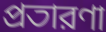
প্রতারণা